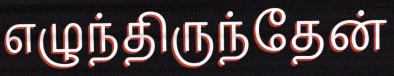
எழுந்திருந்தேன்